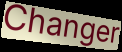
Changer